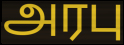
அரபு